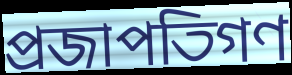
প্রজাপতিগণ